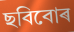
ছবিবোৰ